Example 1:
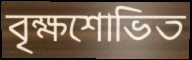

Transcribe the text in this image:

বৃক্ষশোভিত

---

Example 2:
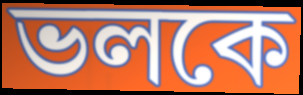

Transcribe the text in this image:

ভলকে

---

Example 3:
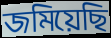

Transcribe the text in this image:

জমিয়েছি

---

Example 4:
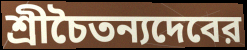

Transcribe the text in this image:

শ্রীচৈতন্যদেবের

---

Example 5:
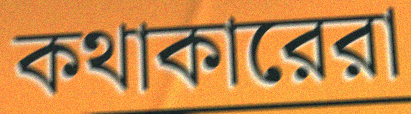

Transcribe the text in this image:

কথাকারেরা